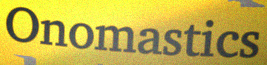
Onomastics